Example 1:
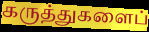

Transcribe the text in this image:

கருத்துகளைப்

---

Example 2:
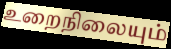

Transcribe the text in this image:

உறைநிலையும்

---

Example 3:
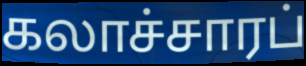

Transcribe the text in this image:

கலாச்சாரப்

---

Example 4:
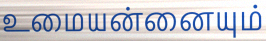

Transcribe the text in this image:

உமையன்னையும்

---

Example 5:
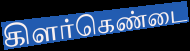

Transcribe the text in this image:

கிளர்கெண்டை